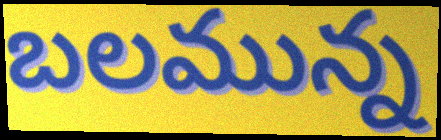
బలమున్న